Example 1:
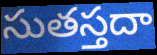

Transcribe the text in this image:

సుతస్తదా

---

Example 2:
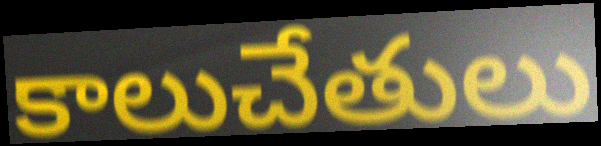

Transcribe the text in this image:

కాలుచేతులు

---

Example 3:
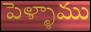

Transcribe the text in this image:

పెళ్ళాము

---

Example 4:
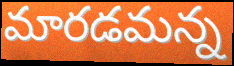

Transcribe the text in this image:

మారడమన్న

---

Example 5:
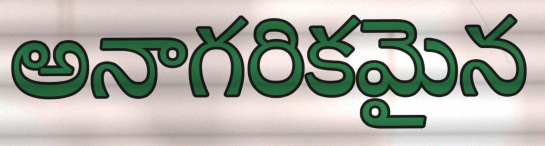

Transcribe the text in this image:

అనాగరికమైన